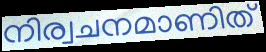
നിര്വചനമാണിത്